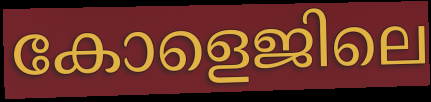
കോളെജിലെ